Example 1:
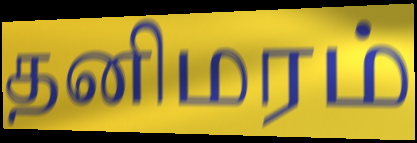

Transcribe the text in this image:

தனிமரம்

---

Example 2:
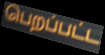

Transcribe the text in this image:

பெறப்பட்ட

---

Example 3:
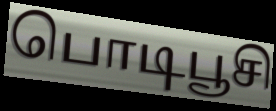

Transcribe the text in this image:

பொடிபூசி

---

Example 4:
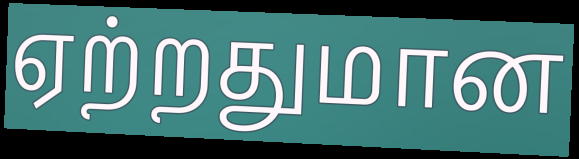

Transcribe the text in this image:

ஏற்றதுமான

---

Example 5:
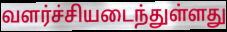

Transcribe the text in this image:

வளர்ச்சியடைந்துள்ளது